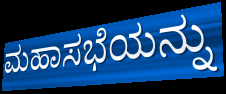
ಮಹಾಸಭೆಯನ್ನು